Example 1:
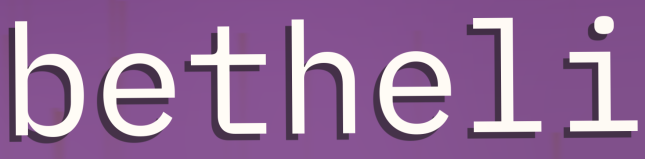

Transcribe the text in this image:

betheli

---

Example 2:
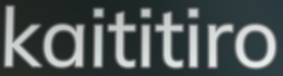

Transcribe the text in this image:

kaititiro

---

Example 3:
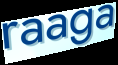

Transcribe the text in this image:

raaga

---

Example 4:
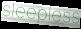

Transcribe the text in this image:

sleepless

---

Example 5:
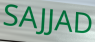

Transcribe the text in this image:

SAJJAD